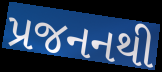
પ્રજનનથી